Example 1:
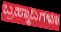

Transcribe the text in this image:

ಬ್ರಹ್ಮಾದಿಗಳೂ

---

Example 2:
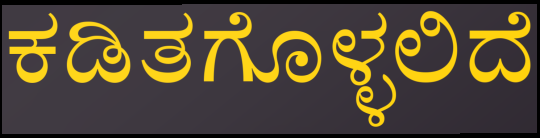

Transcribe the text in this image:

ಕಡಿತಗೊಳ್ಳಲಿದೆ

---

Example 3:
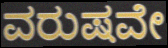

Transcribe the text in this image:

ವರುಷವೇ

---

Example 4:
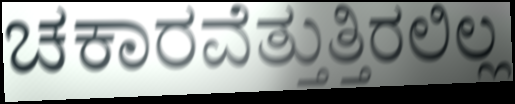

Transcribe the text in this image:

ಚಕಾರವೆತ್ತುತ್ತಿರಲಿಲ್ಲ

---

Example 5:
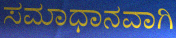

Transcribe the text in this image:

ಸಮಾಧಾನವಾಗಿ